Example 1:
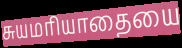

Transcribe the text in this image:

சுயமரியாதையை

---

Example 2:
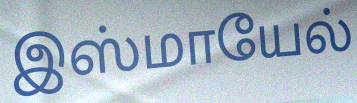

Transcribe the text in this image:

இஸ்மாயேல்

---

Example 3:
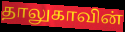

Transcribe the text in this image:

தாலுகாவின்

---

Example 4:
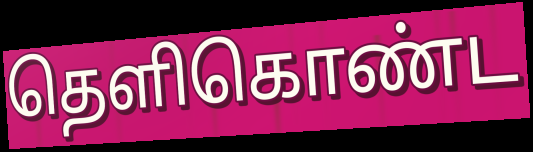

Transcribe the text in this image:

தெளிகொண்ட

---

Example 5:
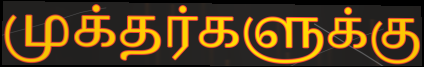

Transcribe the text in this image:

முக்தர்களுக்கு